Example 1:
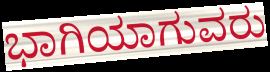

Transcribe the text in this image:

ಭಾಗಿಯಾಗುವರು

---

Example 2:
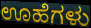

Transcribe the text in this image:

ಊಹೆಗಳು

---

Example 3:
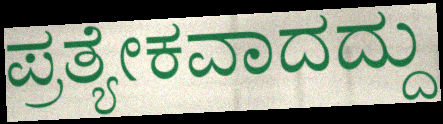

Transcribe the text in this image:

ಪ್ರತ್ಯೇಕವಾದದ್ದು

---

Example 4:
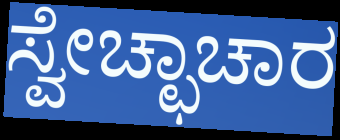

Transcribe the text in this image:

ಸ್ವೇಚ್ಛಾಚಾರ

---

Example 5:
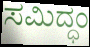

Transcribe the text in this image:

ಸಮಿದ್ಧಂ